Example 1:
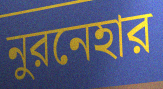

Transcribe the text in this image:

নুরনেহার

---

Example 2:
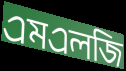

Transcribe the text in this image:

এমএলজি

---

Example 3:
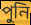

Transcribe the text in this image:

পুনি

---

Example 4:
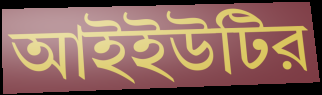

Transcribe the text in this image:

আইইউটির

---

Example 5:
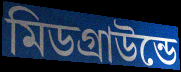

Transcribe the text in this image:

মিডগ্রাউন্ডে